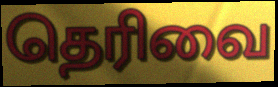
தெரிவை